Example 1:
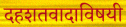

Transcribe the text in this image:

दहशतवादाविषयी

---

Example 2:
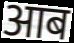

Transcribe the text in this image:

आब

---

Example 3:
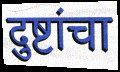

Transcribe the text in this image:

दुष्टांचा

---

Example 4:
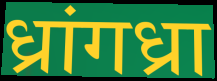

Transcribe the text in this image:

ध्रांगध्रा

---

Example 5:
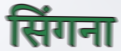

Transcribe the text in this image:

सिंगना